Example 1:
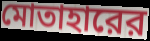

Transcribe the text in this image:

মোতাহারের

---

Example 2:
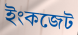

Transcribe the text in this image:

ইংকজেট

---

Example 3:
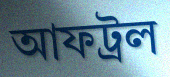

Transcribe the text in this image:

আফট্রল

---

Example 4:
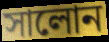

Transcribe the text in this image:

সালোন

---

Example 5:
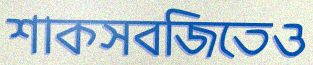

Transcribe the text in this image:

শাকসবজিতেও